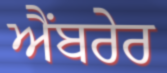
ਐਂਬਰੇਰ